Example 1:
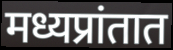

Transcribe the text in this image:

मध्यप्रांतात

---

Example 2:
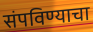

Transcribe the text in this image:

संपविण्याचा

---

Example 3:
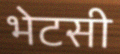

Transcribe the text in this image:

भेटसी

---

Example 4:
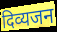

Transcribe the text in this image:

दिव्यजन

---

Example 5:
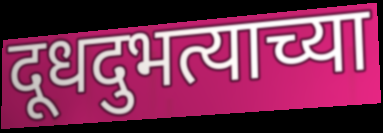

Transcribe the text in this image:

दूधदुभत्याच्या